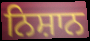
ਨਿਸ਼ਾਨ